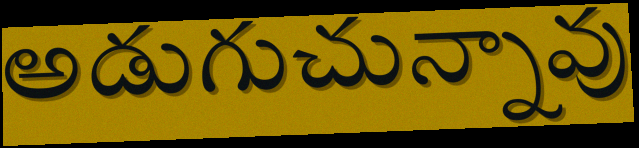
అడుగుచున్నావు